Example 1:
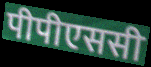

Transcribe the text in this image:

पीपीएससी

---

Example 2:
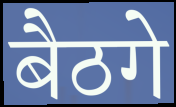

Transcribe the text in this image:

बैठगे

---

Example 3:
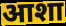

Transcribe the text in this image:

आशा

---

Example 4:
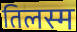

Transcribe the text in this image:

तिलस्म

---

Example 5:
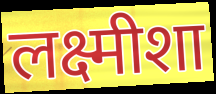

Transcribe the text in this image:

लक्ष्मीशा